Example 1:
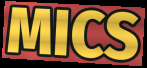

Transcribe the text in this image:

MICS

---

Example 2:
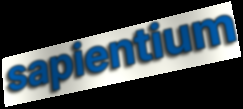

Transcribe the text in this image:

sapientium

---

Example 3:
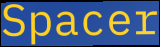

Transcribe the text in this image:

Spacer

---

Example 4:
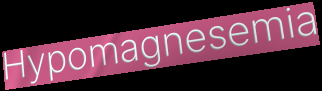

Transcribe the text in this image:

Hypomagnesemia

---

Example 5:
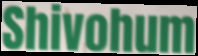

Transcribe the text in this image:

Shivohum